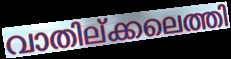
വാതില്ക്കലെത്തി